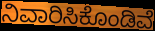
ನಿವಾರಿಸಿಕೊಂಡಿವೆ